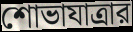
শোভাযাত্রার